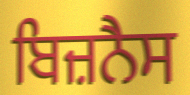
ਬਿਜ਼ਨੈਸ